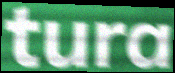
tura